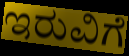
ಇರುವಿಗೆ